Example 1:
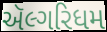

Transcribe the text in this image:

ઍલ્ગરિધમ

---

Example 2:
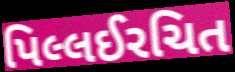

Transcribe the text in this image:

પિલ્લઈરચિત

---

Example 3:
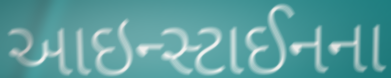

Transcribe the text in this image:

આઇન્સ્ટાઈનના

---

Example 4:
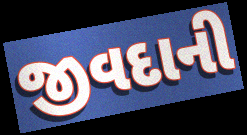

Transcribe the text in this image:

જીવદાની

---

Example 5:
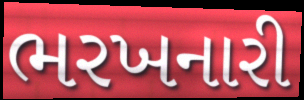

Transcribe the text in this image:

ભરખનારી